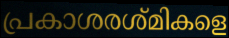
പ്രകാശരശ്മികളെ